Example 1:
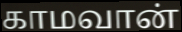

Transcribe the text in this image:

காமவான்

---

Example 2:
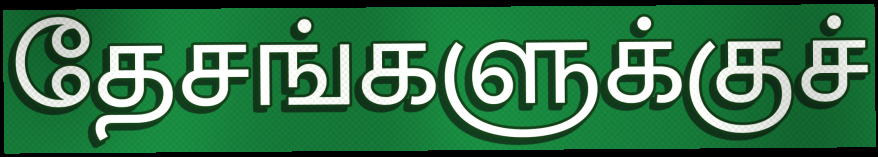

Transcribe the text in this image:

தேசங்களுக்குச்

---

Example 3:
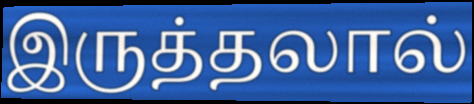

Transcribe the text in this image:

இருத்தலால்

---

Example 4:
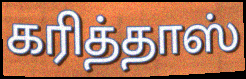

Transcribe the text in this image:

கரித்தாஸ்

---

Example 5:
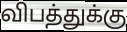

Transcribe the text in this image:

விபத்துக்கு